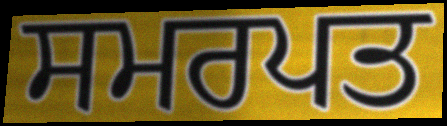
ਸਮਰਪਤ